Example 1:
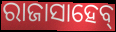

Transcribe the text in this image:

ରାଜାସାହେବ୍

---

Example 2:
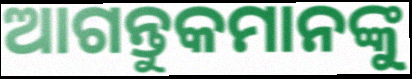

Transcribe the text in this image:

ଆଗନ୍ତୁକମାନଙ୍କୁ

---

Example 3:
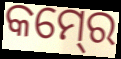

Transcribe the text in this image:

କମ୍‍ରେ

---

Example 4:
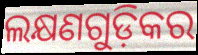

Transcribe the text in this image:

ଲକ୍ଷଣଗୁଡ଼ିକର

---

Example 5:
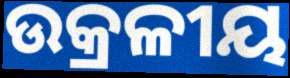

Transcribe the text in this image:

ଉକ୍ରଳୀୟ